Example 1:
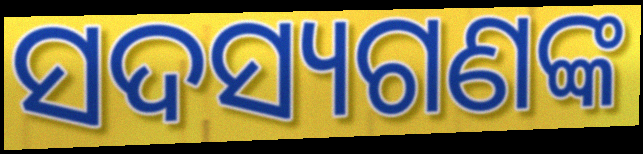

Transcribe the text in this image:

ସଦସ୍ୟଗଣଙ୍କ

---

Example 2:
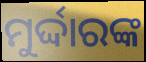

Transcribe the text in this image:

ମୁର୍ଦ୍ଦାରଙ୍କ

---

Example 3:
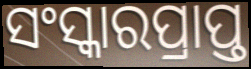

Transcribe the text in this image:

ସଂସ୍କାରପ୍ରାପ୍ତ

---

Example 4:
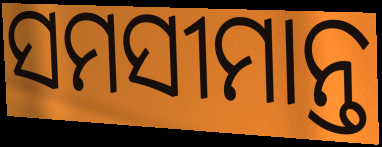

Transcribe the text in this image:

ସମସୀମାନ୍ତ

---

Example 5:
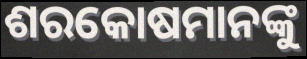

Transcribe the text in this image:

ଶରକୋଷମାନଙ୍କୁ